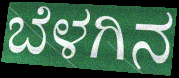
ಬೆಳಗಿನ